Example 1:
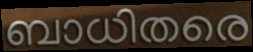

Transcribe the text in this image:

ബാധിതരെ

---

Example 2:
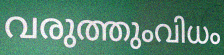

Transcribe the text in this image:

വരുത്തുംവിധം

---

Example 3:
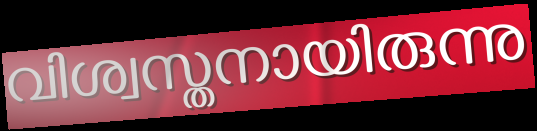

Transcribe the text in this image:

വിശ്വസ്തനായിരുന്നു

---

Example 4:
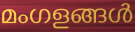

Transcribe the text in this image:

മംഗളങ്ങൾ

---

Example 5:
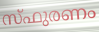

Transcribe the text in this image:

സ്ഫുരണം